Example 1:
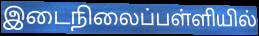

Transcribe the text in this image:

இடைநிலைப்பள்ளியில்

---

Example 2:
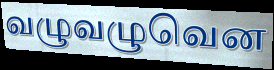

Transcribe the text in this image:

வழுவழுவென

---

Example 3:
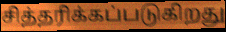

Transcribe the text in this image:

சித்தரிக்கப்படுகிறது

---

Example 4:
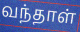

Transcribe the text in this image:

வந்தாள்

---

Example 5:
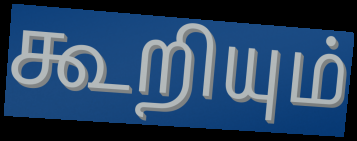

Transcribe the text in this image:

கூறியும்